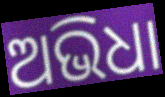
ଅଭିଧା